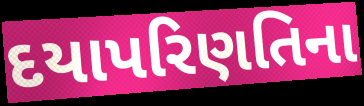
દયાપરિણતિના